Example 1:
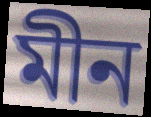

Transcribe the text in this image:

মীন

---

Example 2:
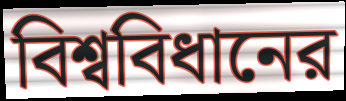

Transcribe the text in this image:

বিশ্ববিধানের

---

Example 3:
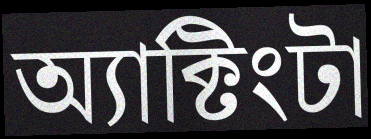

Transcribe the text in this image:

অ্যাক্টিংটা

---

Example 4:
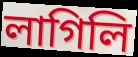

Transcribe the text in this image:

লাগিলি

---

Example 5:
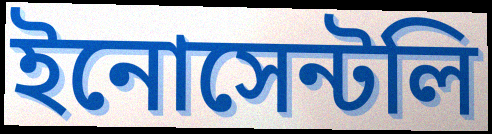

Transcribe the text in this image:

ইনোসেন্টলি